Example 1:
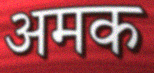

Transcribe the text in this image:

अमक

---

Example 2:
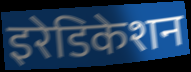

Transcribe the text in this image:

इरेडिकेशन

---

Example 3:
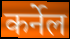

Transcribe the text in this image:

कर्नेल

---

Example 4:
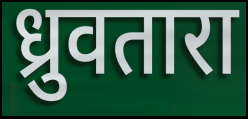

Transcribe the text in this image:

ध्रुवतारा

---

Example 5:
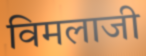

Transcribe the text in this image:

विमलाजी